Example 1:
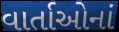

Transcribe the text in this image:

વાર્તાઓનાં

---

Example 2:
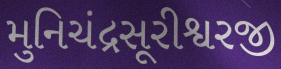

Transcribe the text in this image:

મુનિચંદ્રસૂરીશ્વરજી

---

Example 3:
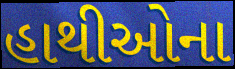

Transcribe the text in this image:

હાથીઓના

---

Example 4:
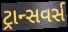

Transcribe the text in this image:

ટ્રાન્સવર્સ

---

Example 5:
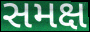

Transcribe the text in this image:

સમક્ષ